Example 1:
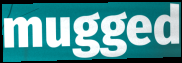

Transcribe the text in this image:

mugged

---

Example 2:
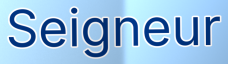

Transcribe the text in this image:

Seigneur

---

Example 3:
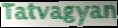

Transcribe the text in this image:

Tatvagyan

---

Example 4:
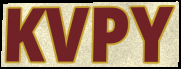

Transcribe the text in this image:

KVPY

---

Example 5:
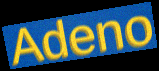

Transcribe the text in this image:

Adeno